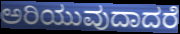
ಅರಿಯುವುದಾದರೆ